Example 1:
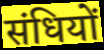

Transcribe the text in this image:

संधियों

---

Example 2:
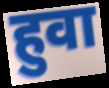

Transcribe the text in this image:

हुवा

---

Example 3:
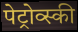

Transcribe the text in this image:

पेट्रोव्स्की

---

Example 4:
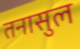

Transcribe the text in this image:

तनासुल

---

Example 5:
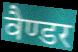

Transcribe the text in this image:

वैण्डर